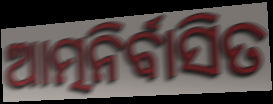
ଆତ୍ମନିର୍ବାସିତ